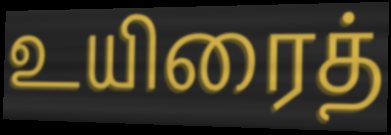
உயிரைத்